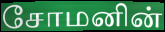
சோமனின்